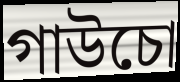
গাউচো